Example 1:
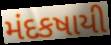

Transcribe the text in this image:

મંદકષાયી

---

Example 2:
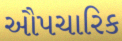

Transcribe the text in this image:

ઔપચારિક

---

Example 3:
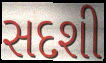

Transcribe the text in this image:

સદશી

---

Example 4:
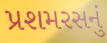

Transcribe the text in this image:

પ્રશમરસનું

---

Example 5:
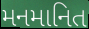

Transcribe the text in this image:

મનમાનિત